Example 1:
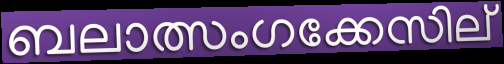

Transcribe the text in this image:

ബലാത്സംഗക്കേസില്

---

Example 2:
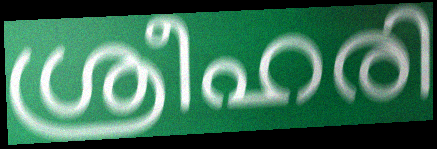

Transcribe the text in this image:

ശ്രീഹരി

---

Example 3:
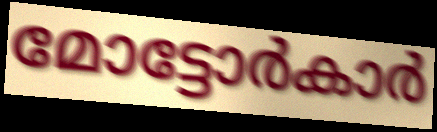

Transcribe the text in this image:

മോട്ടോർകാർ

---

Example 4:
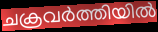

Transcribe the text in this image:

ചക്രവർത്തിയിൽ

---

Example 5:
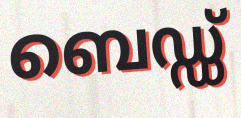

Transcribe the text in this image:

ബെഡ്ഡ്